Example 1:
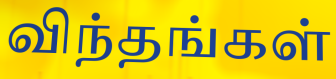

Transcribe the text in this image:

விந்தங்கள்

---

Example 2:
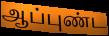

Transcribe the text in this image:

ஆப்புண்ட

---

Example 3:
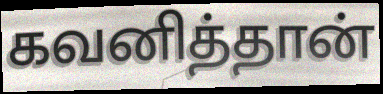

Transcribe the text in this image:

கவனித்தான்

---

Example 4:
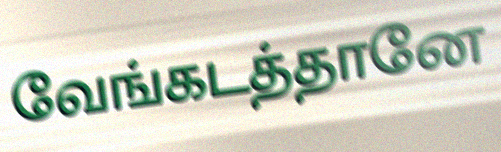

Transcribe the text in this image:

வேங்கடத்தானே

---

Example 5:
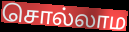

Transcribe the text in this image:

சொல்லாம